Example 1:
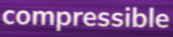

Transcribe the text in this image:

compressible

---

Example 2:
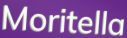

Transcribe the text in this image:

Moritella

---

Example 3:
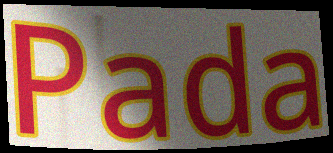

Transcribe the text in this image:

Pada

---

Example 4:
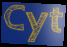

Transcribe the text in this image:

Cyt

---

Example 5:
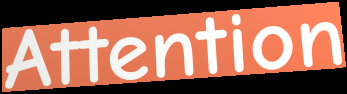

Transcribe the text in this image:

Attention